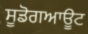
ਸੂਡੋਗਆਊਟ